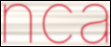
nca